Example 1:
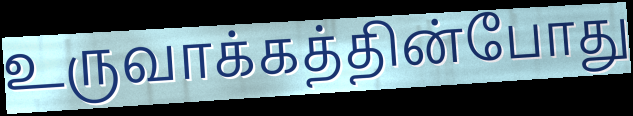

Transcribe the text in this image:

உருவாக்கத்தின்போது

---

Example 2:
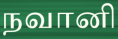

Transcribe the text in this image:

நவானி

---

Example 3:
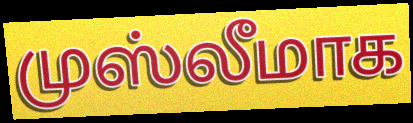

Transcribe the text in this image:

முஸ்லீமாக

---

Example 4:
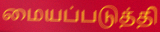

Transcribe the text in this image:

மையப்படுத்தி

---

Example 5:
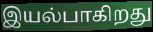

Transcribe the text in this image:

இயல்பாகிறது